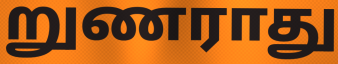
றுணராது